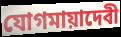
যোগমায়াদেবী